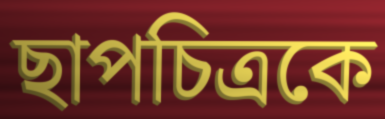
ছাপচিত্রকে